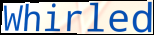
Whirled